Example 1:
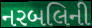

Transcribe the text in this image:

નરબલિની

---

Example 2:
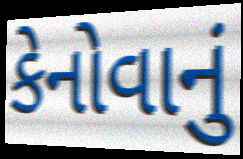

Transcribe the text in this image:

કેનોવાનું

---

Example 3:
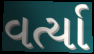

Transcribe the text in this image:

વર્ત્યા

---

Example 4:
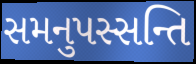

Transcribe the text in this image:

સમનુપસ્સન્તિ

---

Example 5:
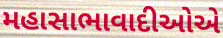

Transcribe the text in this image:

મહાસાભાવાદીઓએ